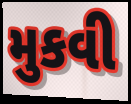
મુકવી